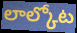
లాల్కోట